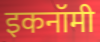
इकनॉमी